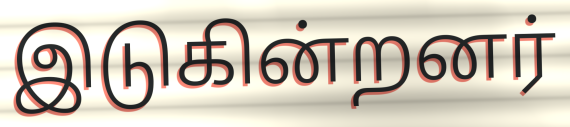
இடுகின்றனர்